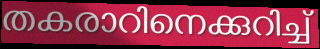
തകരാറിനെക്കുറിച്ച്